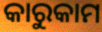
କାରୁକାମ